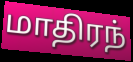
மாதிரந்